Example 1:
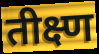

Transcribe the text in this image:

तीक्ष्ण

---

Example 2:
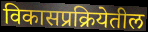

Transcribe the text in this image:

विकासप्रक्रियेतील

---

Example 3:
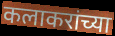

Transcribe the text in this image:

कलाकरांच्या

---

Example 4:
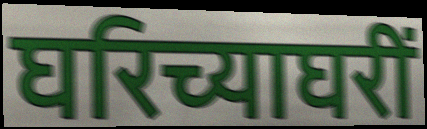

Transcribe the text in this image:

घरिच्याघरीं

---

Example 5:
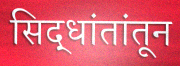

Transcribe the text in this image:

सिद्धांतांतून